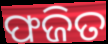
ଫଜିତ